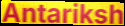
Antariksh